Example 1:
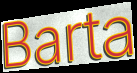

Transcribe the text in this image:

Barta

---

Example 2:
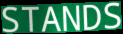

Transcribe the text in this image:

STANDS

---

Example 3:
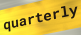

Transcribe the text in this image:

quarterly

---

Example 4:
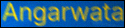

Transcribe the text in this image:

Angarwata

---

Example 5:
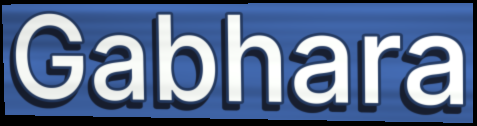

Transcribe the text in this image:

Gabhara